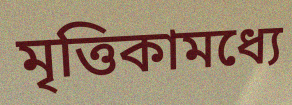
মৃত্তিকামধ্যে